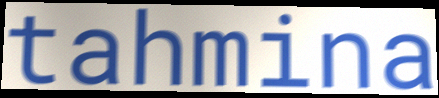
tahmina